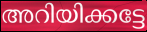
അറിയിക്കട്ടേ